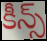
కీన్స్